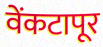
वेंकटापूर